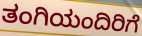
ತಂಗಿಯಂದಿರಿಗೆ